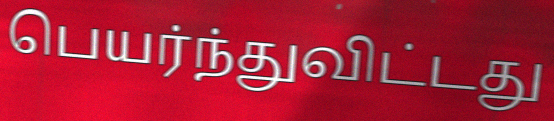
பெயர்ந்துவிட்டது